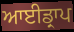
ਆਈਡ੍ਰਾਪ